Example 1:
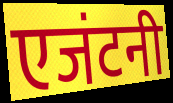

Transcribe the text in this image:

एजंटनी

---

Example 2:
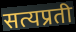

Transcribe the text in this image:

सत्यप्रती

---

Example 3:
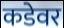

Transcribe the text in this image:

कडेवर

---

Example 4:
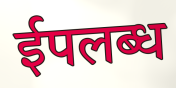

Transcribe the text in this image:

ईपलब्ध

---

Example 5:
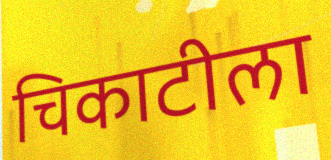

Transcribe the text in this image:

चिकाटीला